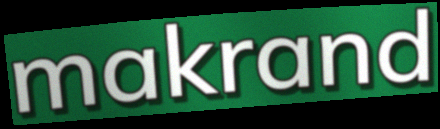
makrand